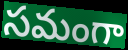
సమంగా